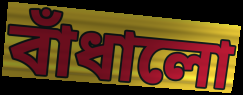
বাঁধালো